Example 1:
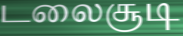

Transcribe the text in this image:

டலைசூடி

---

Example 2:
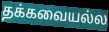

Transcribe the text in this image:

தக்கவையல்ல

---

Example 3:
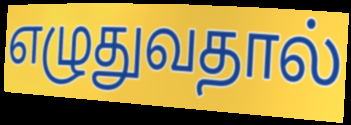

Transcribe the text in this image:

எழுதுவதால்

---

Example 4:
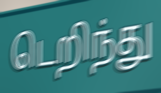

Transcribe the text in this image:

டெறிந்து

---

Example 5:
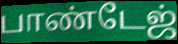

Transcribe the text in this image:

பாண்டேஜ்